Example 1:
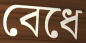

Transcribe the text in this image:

বেধে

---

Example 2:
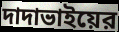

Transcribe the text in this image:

দাদাভাইয়ের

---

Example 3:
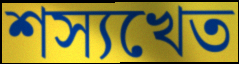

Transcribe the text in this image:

শস্যখেত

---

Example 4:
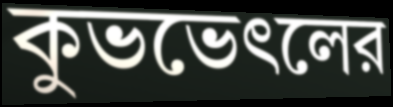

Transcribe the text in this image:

কুভভেৎলের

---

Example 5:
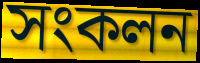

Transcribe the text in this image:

সংকলন